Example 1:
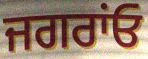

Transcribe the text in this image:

ਜਗਰਾਂਓ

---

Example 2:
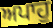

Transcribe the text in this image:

ਅਪਾਹੁ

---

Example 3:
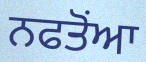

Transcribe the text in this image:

ਨਫਤੋਂਆ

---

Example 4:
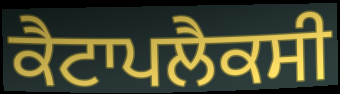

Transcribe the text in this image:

ਕੈਟਾਪਲੈਕਸੀ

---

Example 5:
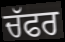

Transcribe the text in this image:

ਚੱਫਰ